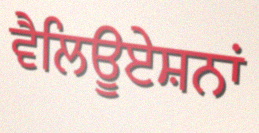
ਵੈਲਿਊਏਸ਼ਨਾਂ